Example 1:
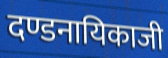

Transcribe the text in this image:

दण्डनायिकाजी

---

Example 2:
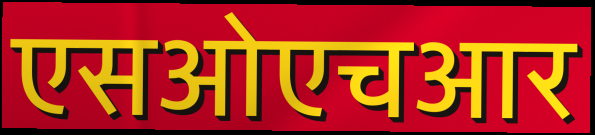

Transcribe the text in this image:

एसओएचआर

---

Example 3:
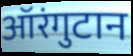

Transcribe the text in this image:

ऑरंगुटान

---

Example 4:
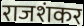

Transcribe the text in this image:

राजशंकर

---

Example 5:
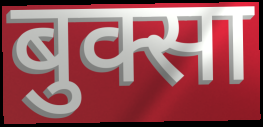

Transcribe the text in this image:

बुक्सा